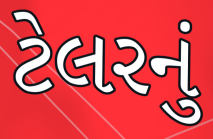
ટેલરનું